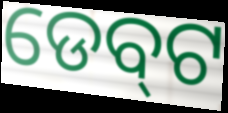
ଡେବ୍‌ଟ